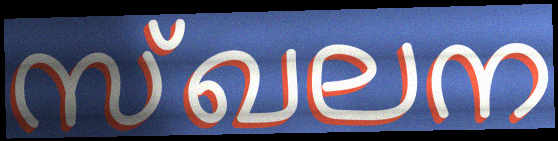
സ്ഖലന